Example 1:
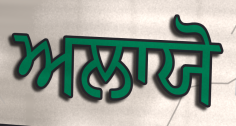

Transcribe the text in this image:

ਅਲਾਯੋ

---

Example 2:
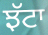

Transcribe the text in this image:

ਝੱਟਾ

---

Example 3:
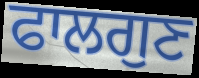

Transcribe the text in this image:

ਫਾਲਗੁਣ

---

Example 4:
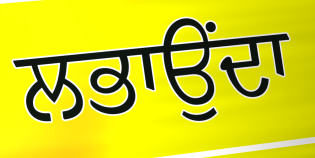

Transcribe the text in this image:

ਲਭਾਉਂਦਾ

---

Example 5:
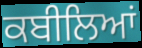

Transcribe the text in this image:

ਕਬੀਲਿਆਂ